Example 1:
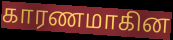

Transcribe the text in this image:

காரணமாகின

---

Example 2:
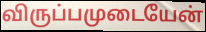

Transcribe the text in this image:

விருப்பமுடையேன்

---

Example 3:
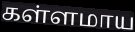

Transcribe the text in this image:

கள்ளமாய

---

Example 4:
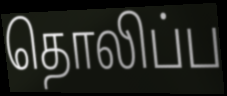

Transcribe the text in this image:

தொலிப்ப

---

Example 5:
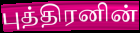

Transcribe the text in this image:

புத்திரனின்